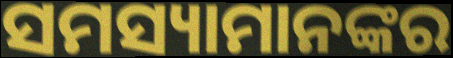
ସମସ୍ୟାମାନଙ୍କର